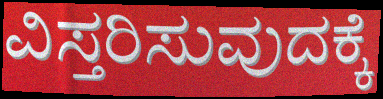
ವಿಸ್ತರಿಸುವುದಕ್ಕೆ